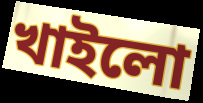
খাইলো